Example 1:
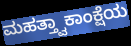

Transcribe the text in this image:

ಮಹತ್ತ್ವಾಕಾಂಕ್ಷೆಯ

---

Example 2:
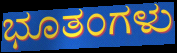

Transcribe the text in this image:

ಭೂತಂಗಳು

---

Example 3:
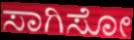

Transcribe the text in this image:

ಸಾಗಿಸೋ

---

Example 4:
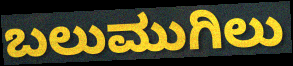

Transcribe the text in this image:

ಬಲುಮುಗಿಲು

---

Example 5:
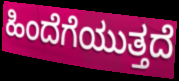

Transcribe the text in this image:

ಹಿಂದೆಗೆಯುತ್ತದೆ